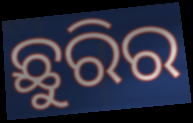
ଛୁରିର